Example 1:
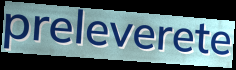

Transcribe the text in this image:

preleverete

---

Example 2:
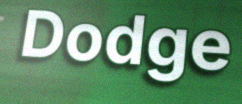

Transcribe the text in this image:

Dodge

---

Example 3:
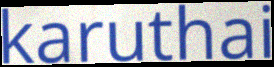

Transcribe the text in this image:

karuthai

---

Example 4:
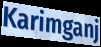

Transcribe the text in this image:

Karimganj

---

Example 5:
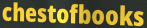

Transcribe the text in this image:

chestofbooks